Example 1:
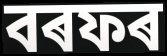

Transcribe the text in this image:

বৰফৰ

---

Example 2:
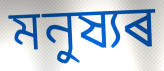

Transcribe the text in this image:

মনুষ্যৰ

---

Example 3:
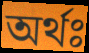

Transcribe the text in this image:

অৰ্থঃ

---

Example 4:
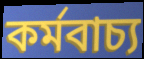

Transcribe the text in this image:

কৰ্মবাচ্য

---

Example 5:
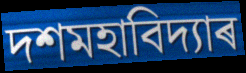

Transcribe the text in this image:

দশমহাবিদ্যাৰ